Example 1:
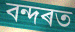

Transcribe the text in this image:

বন্দৰত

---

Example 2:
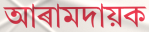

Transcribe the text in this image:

আৰামদায়ক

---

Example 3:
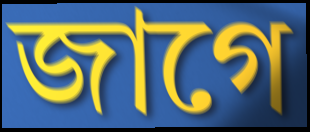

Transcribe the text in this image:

জাগে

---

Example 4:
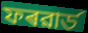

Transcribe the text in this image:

ফৰৱাৰ্ড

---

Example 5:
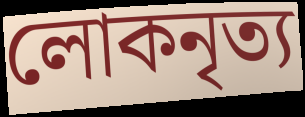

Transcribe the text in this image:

লোকনৃত্য